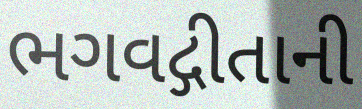
ભગવદ્ગીતાની